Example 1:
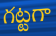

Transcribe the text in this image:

గట్టగా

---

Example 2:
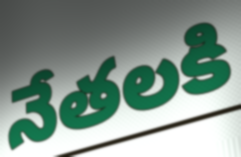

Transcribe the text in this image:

నేతలకి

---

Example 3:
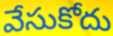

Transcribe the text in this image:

వేసుకోదు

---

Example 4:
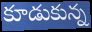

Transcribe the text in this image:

కూడుకున్న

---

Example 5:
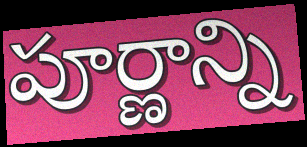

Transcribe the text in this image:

పూర్ణాన్ని